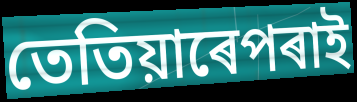
তেতিয়াৰেপৰাই